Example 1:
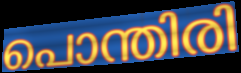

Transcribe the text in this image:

പൊന്തിരി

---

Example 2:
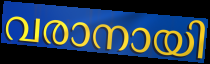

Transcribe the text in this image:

വരാനായി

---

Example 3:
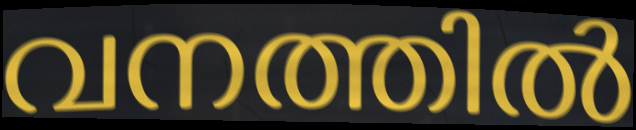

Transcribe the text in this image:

വനത്തിൽ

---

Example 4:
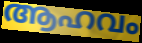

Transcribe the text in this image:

ആഹവം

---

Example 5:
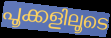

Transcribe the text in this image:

പൂക്കളിലൂടെ